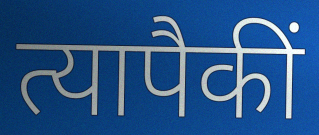
त्यापैकीं